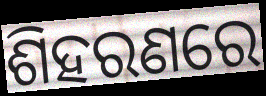
ଶିହରଣରେ